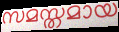
സമസ്തമായ